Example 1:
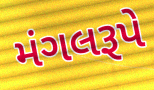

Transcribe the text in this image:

મંગલરૂપે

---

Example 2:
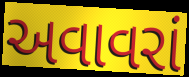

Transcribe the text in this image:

અવાવરાં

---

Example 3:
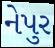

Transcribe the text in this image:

નેપુર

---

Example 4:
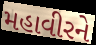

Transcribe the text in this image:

મહાવીરને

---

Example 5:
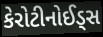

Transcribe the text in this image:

કેરોટીનોઈડ્સ